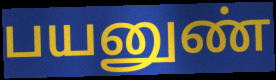
பயனுண்